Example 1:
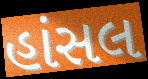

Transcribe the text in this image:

હાંસલ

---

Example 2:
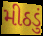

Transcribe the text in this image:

મીઠડું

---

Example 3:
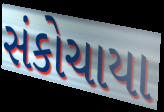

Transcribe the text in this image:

સંકોચાયા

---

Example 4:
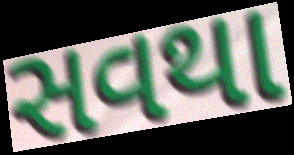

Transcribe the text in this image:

સવથા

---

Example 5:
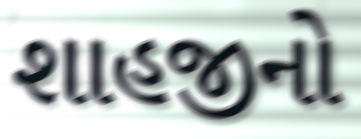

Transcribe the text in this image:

શાહજીનો